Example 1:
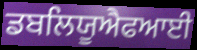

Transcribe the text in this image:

ਡਬਲਿਯੂਐਫਆਈ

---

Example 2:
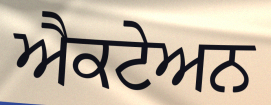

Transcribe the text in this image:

ਐਕਟੇਅਨ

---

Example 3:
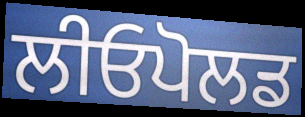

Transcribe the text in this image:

ਲੀਓਪੋਲਡ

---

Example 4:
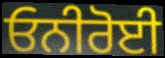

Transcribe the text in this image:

ਓਨੀਰੋਈ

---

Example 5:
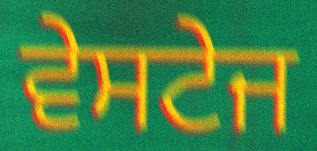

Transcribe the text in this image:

ਵੇਸਟੇਜ